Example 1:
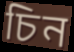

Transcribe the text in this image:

চিন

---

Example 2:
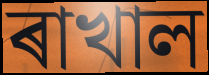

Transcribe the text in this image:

ৰাখাল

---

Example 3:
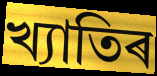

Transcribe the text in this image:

খ্যাতিৰ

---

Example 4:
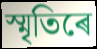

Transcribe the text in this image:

স্মৃতিৰে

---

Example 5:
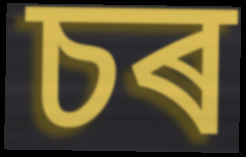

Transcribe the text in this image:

চৰ